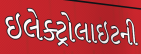
ઇલેક્ટ્રોલાઇટની